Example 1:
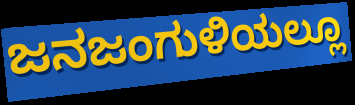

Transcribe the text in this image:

ಜನಜಂಗುಳಿಯಲ್ಲೂ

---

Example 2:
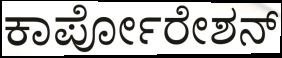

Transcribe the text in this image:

ಕಾರ್ಪೋರೇಶನ್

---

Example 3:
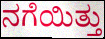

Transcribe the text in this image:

ನಗೆಯಿತ್ತು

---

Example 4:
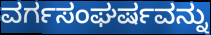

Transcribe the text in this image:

ವರ್ಗಸಂಘರ್ಷವನ್ನು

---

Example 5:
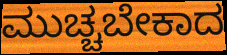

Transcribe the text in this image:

ಮುಚ್ಚಬೇಕಾದ